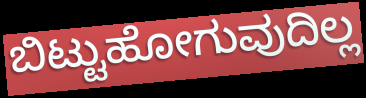
ಬಿಟ್ಟುಹೋಗುವುದಿಲ್ಲ